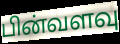
பின்வளவு